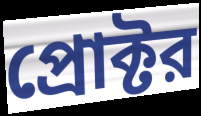
প্রোক্টর